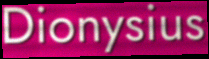
Dionysius